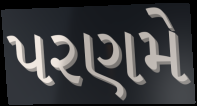
પરણમે